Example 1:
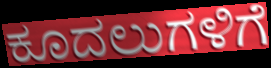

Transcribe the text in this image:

ಕೂದಲುಗಳಿಗೆ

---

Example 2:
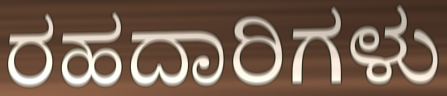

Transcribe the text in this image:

ರಹದಾರಿಗಳು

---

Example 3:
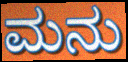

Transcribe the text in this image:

ಮನು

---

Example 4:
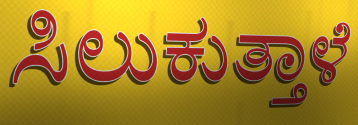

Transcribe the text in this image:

ಸಿಲುಕುತ್ತಾಳೆ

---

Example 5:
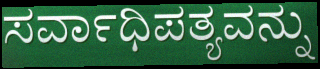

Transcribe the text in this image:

ಸರ್ವಾಧಿಪತ್ಯವನ್ನು